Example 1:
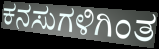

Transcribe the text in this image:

ಕನಸುಗಳಿಗಿಂತ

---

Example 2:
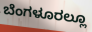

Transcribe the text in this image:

ಬೆಂಗಳೂರಲ್ಲೂ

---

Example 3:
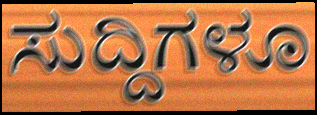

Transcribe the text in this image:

ಸುದ್ದಿಗಳೂ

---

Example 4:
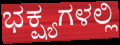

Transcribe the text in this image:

ಭಕ್ಷ್ಯಗಳಲ್ಲಿ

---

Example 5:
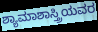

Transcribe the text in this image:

ಶ್ಯಾಮಾಶಾಸ್ತ್ರಿಯವರ